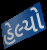
હેલ્યો